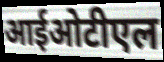
आईओटीएल